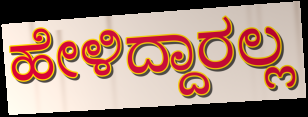
ಹೇಳಿದ್ದಾರಲ್ಲ